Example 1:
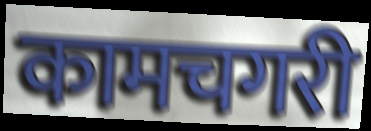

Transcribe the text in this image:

कामचगरी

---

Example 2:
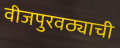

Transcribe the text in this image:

वीजपुरवठ्याची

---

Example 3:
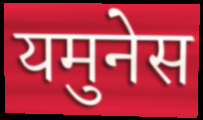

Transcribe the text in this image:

यमुनेस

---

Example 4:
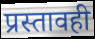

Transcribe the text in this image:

प्रस्तावही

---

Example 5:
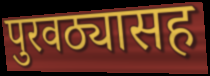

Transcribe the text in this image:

पुरवठ्यासह